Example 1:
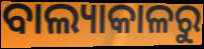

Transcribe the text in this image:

ବାଲ୍ୟାକାଳରୁ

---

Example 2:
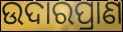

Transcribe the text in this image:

ଉଦାରପ୍ରାଣ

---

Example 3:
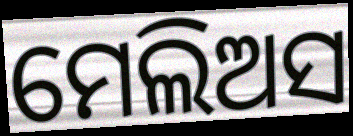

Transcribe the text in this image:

ମେଲିଅସ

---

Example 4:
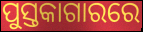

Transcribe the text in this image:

ପୁସ୍ତକାଗାରରେ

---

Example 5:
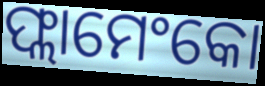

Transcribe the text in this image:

ଫ୍ଲାମେଂକୋ